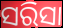
ସରିସା